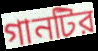
গানটির